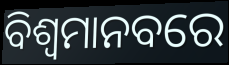
ବିଶ୍ୱମାନବରେ